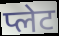
प्लेट